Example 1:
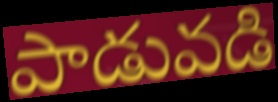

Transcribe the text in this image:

పాడువడి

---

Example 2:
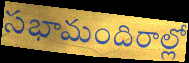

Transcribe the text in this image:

సభామందిరాల్లో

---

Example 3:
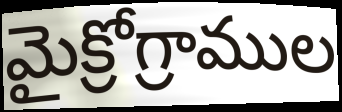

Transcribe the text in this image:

మైక్రోగ్రాముల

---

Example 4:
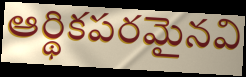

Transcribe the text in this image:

ఆర్థికపరమైనవి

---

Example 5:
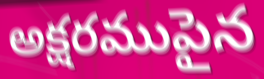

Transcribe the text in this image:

అక్షరముపైన